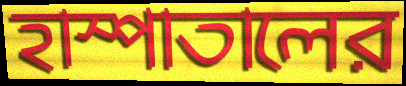
হাস্পাতালের